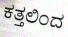
ಕತ್ತಲಿಂದ